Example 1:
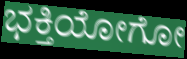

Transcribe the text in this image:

ಭಕ್ತಿಯೋಗೋ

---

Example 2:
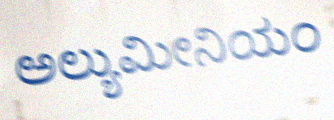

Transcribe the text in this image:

ಅಲ್ಯುಮೀನಿಯಂ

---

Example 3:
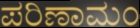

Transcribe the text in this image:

ಪರಿಣಾಮಂ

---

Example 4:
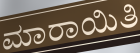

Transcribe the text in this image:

ಮಾರಾಯಿತಿ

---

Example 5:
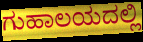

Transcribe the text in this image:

ಗುಹಾಲಯದಲ್ಲಿ